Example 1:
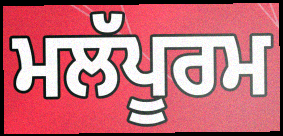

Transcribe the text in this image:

ਮਲੱਪੂਰਮ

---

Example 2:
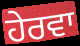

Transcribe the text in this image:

ਹੇਰਵਾ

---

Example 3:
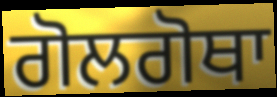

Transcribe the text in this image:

ਗੋਲਗੋਥਾ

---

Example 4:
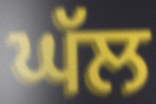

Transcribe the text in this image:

ਘੱਲ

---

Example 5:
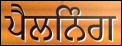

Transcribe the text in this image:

ਪੈਲਨਿੰਗ